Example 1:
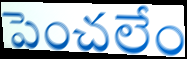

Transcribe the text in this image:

పెంచలేం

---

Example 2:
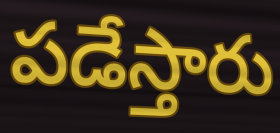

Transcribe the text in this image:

పడేస్తారు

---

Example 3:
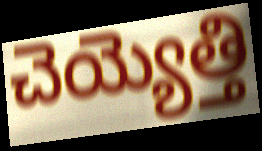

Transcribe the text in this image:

చెయ్యెత్తి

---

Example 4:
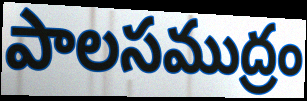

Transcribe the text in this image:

పాలసముద్రం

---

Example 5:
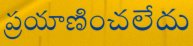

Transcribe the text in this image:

ప్రయాణించలేదు